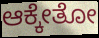
ಆಕ್ಕೇತೋ